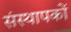
संस्थापकों